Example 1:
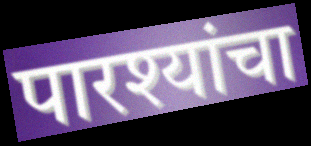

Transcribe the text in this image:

पारश्यांचा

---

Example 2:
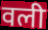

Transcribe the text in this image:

वली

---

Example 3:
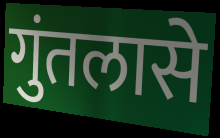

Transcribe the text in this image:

गुंतलासे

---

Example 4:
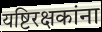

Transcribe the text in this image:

यष्टिरक्षकांना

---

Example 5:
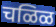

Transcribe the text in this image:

चळिळ